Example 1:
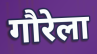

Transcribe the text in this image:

गौरेला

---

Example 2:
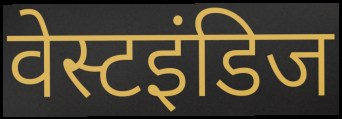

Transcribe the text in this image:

वेस्टइंडिज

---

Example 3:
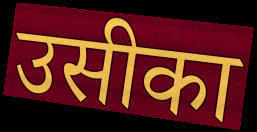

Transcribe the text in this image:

उसीका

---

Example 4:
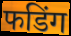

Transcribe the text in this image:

फडिंग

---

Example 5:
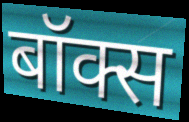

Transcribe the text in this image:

बॉक्स